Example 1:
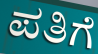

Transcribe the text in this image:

ಪತಿಗೆ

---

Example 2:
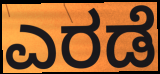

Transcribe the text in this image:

ಎರಡೆ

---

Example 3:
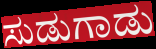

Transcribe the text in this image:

ಸುಡುಗಾಡು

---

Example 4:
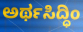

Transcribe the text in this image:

ಅರ್ಥಸಿದ್ಧಿಂ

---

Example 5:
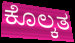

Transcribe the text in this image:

ಕೊಲ್ಕತ